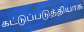
கட்டுப்படுத்தியாக